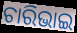
ଚାରିଭାଇ